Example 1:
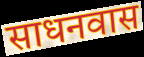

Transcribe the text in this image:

साधनवास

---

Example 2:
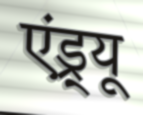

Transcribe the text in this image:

एंड्र्यू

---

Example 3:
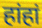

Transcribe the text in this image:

हांहां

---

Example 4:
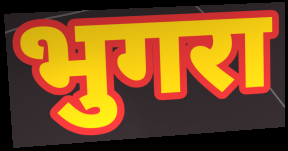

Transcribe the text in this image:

भुगरा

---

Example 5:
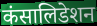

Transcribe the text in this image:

कंसालिडेशन